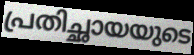
പ്രതിച്ഛായയുടെ